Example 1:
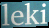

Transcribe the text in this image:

leki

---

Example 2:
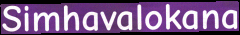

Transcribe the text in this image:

Simhavalokana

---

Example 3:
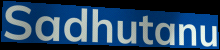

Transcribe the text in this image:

Sadhutanu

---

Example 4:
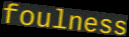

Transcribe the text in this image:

foulness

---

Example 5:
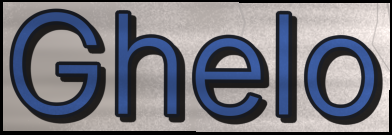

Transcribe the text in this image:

Ghelo